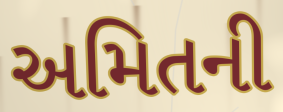
અમિતની